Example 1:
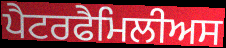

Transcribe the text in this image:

ਪੈਟਰਫੈਮਿਲੀਅਸ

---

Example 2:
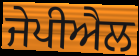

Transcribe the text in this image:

ਜੇਪੀਐਲ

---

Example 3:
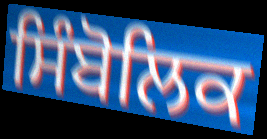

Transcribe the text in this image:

ਸਿੰਬੋਲਿਕ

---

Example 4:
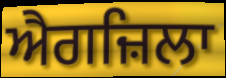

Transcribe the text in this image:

ਐਗਜ਼ਿਲਾ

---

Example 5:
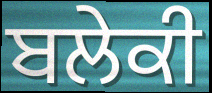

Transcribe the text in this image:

ਬਲੇਕੀ